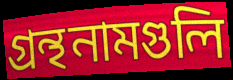
গ্রন্থনামগুলি